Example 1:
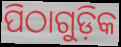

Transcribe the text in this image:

ପିଠାଗୁଡ଼ିକ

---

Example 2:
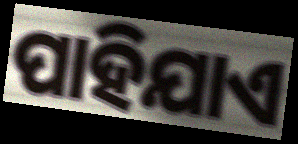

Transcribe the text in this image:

ପାହିଯାଏ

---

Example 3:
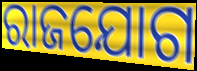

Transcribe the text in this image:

ରାଜଯୋଗ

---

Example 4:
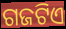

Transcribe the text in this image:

ଗଜଟିଏ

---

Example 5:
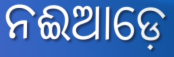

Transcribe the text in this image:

ନଈଆଡ଼େ